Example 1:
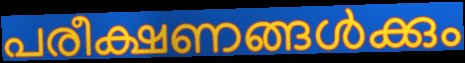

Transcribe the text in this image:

പരീക്ഷണങ്ങൾക്കും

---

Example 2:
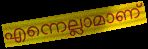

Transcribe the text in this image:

എന്നെല്ലാമാണ്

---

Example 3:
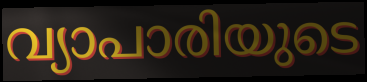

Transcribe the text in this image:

വ്യാപാരിയുടെ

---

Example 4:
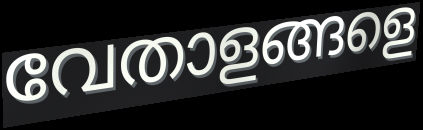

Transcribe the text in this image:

വേതാളങ്ങളെ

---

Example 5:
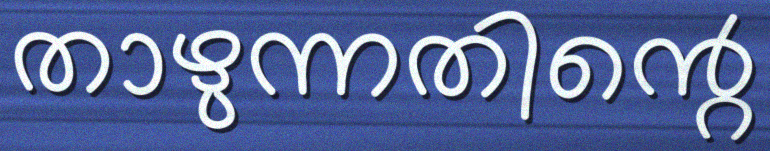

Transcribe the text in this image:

താഴുന്നതിന്റെ